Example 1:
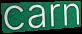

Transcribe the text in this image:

carn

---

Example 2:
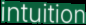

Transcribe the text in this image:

intuition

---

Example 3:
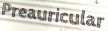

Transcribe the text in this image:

Preauricular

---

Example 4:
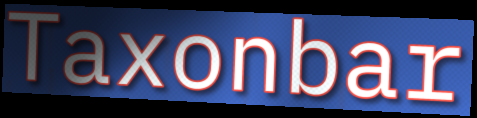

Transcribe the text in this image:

Taxonbar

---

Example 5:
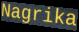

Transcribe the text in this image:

Nagrika